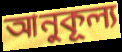
আনুকূল্য